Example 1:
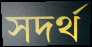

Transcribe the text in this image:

সদর্থ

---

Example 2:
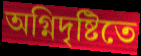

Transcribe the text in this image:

অগ্নিদৃষ্টিতে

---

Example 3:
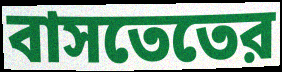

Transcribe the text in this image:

বাসতেতের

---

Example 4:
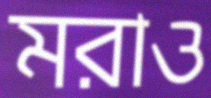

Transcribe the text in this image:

মরাও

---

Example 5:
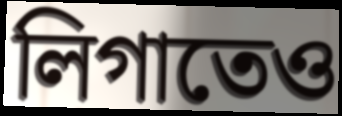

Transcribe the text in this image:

লিগাতেও